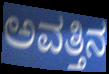
ಅವತ್ತಿನ